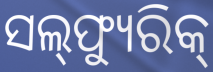
ସଲ୍‌ଫ୍ୟୁରିକ୍